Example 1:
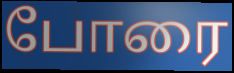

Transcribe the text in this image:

போரை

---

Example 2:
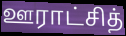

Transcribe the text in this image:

ஊராட்சித்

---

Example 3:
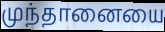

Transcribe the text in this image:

முந்தானையை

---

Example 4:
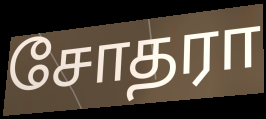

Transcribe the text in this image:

சோதரா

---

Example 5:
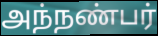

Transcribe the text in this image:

அந்நண்பர்